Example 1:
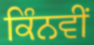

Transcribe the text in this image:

ਕਿੰਨਵੀਂ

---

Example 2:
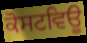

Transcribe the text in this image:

ਕੋਸਟਵਿਊ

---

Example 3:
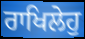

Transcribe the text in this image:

ਰਾਖਿਲੇਹੁ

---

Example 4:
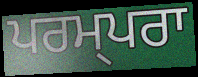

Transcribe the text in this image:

ਪਰਮ੍ਪਰਾ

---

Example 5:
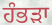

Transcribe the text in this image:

ਹੰਭੜਾ